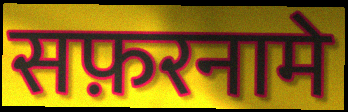
सफ़रनामे